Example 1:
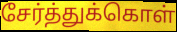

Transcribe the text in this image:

சேர்த்துக்கொள்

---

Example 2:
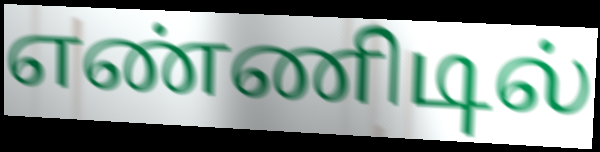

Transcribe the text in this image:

எண்ணிடில்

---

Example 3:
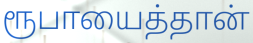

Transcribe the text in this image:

ரூபாயைத்தான்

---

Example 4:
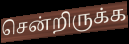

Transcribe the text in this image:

சென்றிருக்க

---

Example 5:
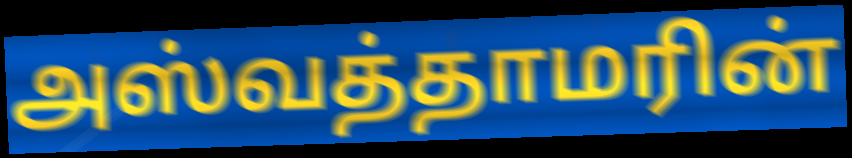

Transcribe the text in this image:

அஸ்வத்தாமரின்